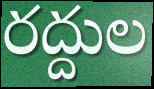
రద్దుల